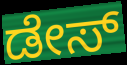
ಡೇಸ್